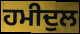
ਹਮੀਦੁਲ